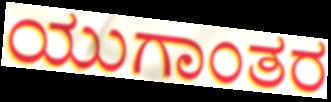
ಯುಗಾಂತರ